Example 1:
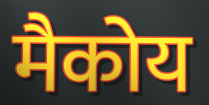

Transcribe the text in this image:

मैकोय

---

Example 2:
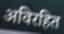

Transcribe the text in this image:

अविरहित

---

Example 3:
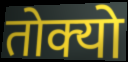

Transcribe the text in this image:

तोक्‍यो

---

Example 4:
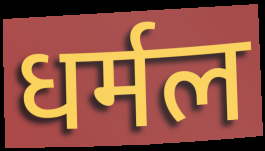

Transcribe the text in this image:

धर्मल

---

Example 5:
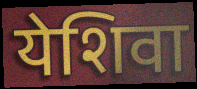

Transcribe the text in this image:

येशिवा